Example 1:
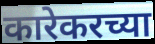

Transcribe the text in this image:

कारेकरच्या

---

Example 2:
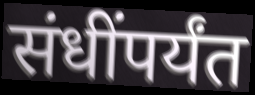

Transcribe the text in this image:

संधींपर्यंत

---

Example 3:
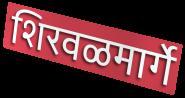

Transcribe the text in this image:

शिरवळमार्गे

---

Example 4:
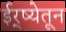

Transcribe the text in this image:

ईर्ष्येतून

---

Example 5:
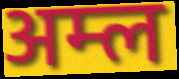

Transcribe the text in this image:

अम्ल